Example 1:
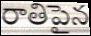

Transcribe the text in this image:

రాతిపైన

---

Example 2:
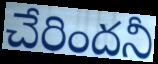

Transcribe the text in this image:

చేరిందనీ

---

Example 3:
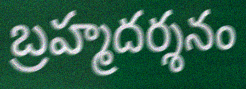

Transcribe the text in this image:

బ్రహ్మదర్శనం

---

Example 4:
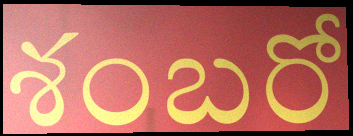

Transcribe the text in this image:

శంబరో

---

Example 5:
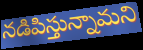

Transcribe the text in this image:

నడిపిస్తున్నామని